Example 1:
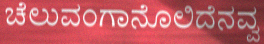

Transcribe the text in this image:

ಚೆಲುವಂಗಾನೊಲಿದೆನವ್ವ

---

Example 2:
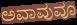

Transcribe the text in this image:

ಅವಾವುವೂ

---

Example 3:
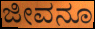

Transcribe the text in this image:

ಜೀವನೂ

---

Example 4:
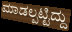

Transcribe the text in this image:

ಮಾಡಲ್ಪಟ್ಟಿದ್ದು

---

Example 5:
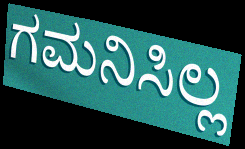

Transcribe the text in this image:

ಗಮನಿಸಿಲ್ಲ